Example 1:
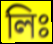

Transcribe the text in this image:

লিঃ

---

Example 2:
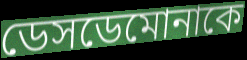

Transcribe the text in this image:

ডেসডেমোনাকে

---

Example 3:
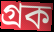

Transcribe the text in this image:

গ্রক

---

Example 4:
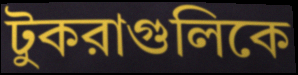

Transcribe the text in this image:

টুকরাগুলিকে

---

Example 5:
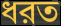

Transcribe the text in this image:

ধরত